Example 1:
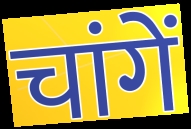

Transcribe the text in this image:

चांगें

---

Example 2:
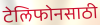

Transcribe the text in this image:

टेलिफोनसाठी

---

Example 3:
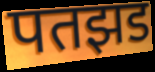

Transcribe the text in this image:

पतझड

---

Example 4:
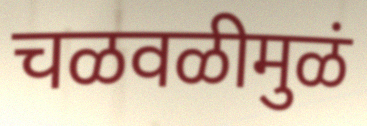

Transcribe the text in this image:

चळवळीमुळं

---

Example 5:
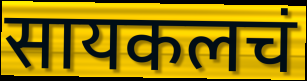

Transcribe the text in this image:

सायकलचं